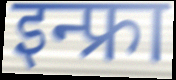
इन्फ्रा